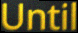
Until